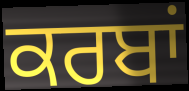
ਕਰਬਾਂ